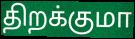
திறக்குமா